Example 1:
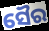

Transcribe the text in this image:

ସୈର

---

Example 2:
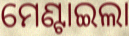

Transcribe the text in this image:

ମେଣ୍ଟାଇଲା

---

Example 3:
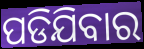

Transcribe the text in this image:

ପଡିଯିବାର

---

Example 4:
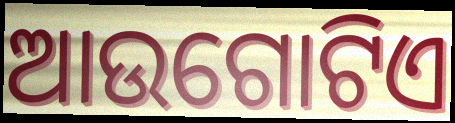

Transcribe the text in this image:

ଆଉଗୋଟିଏ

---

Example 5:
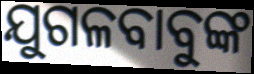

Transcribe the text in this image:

ଯୁଗଳବାବୁଙ୍କ